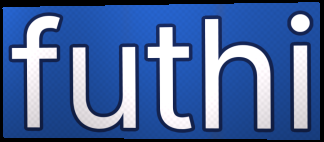
futhi